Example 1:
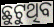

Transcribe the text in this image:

ଛୁଟୁଥିବ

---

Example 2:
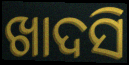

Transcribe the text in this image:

ଖାଦସି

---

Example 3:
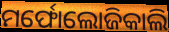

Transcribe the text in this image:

ମର୍ଫୋଲୋଜିକାଲି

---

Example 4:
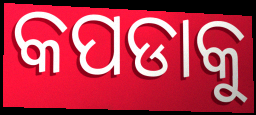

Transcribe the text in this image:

କପଡାକୁ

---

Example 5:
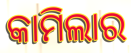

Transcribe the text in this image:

କାମିଲାର